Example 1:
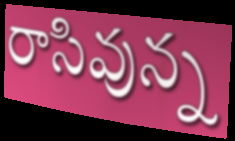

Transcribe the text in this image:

రాసివున్న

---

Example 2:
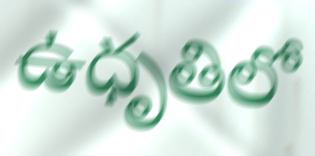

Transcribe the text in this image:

ఉధృతిలో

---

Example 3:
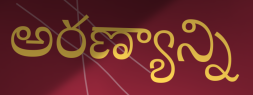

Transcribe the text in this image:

అరణ్యాన్ని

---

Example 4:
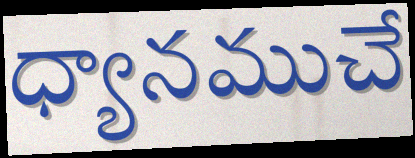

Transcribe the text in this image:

ధ్యానముచే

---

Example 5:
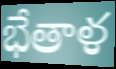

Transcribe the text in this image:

భేతాళ